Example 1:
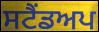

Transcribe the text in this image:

ਸਟੈਂਡਅਪ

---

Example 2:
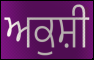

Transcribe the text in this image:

ਅਕੁਸ਼ੀ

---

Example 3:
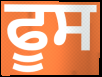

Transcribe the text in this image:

ਫੂਸ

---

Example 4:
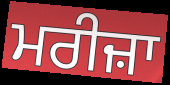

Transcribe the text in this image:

ਮਰੀਜ਼ਾ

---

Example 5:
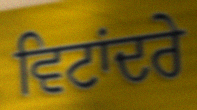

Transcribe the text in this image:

ਵਿਟਾਂਦਰੇ